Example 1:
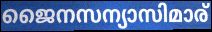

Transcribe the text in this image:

ജൈനസന്യാസിമാര്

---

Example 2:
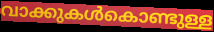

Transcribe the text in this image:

വാക്കുകൾകൊണ്ടുള്ള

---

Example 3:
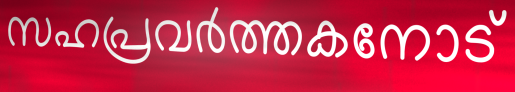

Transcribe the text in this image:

സഹപ്രവർത്തകനോട്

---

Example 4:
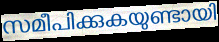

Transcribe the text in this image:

സമീപിക്കുകയുണ്ടായി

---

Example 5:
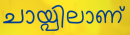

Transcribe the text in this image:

ചായ്പിലാണ്